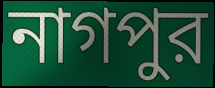
নাগপুর